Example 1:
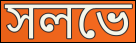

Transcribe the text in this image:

সলভে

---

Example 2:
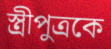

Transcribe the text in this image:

স্ত্রীপুত্রকে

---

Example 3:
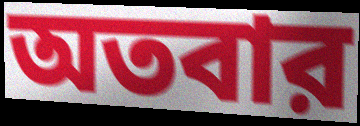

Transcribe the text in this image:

অতবার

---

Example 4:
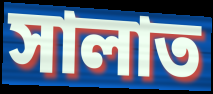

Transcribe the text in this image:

সালাত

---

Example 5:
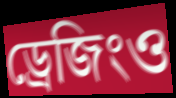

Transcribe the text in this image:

ড্রেজিংও